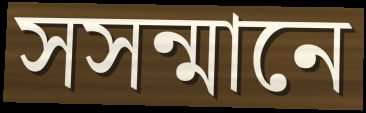
সসন্মানে